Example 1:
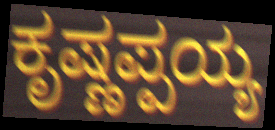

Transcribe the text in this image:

ಕೃಷ್ಣಪ್ಪಯ್ಯ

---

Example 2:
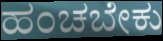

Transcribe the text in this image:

ಹಂಚಬೇಕು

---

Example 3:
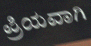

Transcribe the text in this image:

ಪ್ರಿಯವಾಗಿ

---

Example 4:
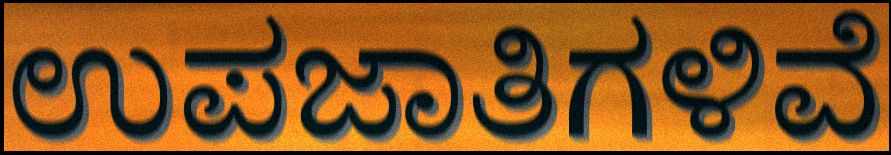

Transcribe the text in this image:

ಉಪಜಾತಿಗಳಿವೆ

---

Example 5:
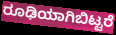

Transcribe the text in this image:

ರೂಢಿಯಾಗಿಬಿಟ್ಟರೆ